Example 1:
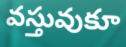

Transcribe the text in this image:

వస్తువుకూ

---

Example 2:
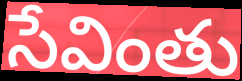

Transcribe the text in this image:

సేవింతు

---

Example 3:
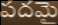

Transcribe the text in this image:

పదమై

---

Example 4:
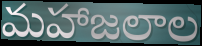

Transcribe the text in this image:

మహాజలాల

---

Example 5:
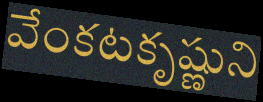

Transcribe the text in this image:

వేంకటకృష్ణుని